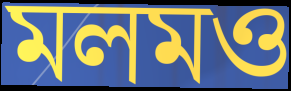
মলমও